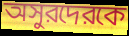
অসুরদেরকে